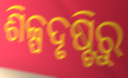
ଶିଳ୍ପଦୃଷ୍ଟିରୁ